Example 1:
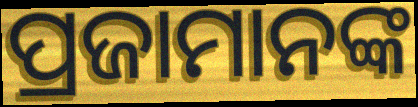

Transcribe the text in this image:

ପ୍ରଜାମାନଙ୍କ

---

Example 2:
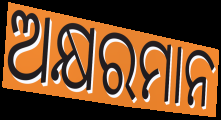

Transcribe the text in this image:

ଅକ୍ଷରମାନ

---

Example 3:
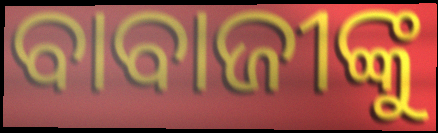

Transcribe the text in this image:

ବାବାଜୀଙ୍କୁ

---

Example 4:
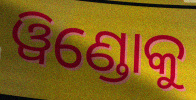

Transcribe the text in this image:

ୱିଣ୍ଡୋକୁ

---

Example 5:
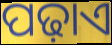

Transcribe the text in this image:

ପଢ଼ାଏ